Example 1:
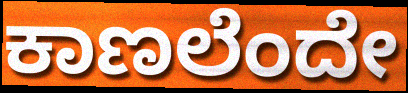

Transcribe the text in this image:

ಕಾಣಲೆಂದೇ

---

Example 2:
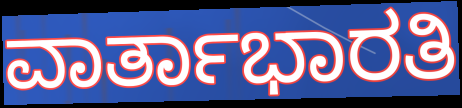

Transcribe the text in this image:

ವಾರ್ತಾಭಾರತಿ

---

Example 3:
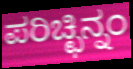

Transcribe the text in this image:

ಪರಿಚ್ಛಿನ್ನಂ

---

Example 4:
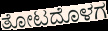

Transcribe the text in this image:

ತೋಟದೊಳಗ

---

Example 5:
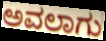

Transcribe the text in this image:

ಅವಲಾಗು